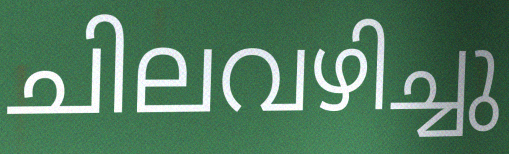
ചിലവഴിച്ചു